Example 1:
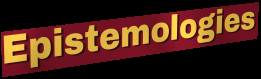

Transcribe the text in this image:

Epistemologies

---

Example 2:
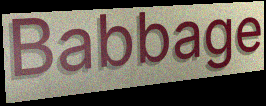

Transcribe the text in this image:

Babbage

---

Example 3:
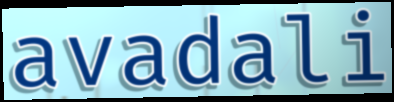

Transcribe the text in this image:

avadali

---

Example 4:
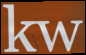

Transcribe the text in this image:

kw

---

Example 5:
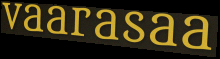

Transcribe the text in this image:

vaarasaa